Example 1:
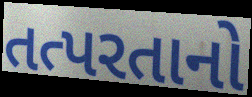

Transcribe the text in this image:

તત્પરતાનો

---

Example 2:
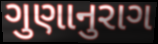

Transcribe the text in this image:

ગુણાનુરાગ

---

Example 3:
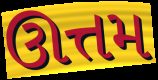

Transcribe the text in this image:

ઊત્તમ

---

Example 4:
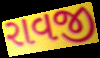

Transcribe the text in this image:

રાવજી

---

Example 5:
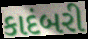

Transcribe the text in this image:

કાદંબરી